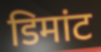
डिमांट